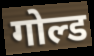
गोल्ड